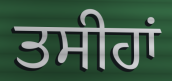
ਤਸੀਹਾਂ